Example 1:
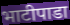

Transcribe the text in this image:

भाटीपाडा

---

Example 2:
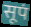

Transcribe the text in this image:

सूपं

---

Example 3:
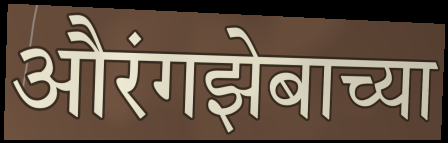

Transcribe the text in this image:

औरंगझेबाच्या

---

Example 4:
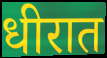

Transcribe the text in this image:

धीरात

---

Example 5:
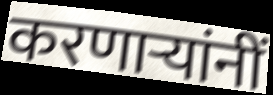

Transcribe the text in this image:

करणार्‍यांनीं